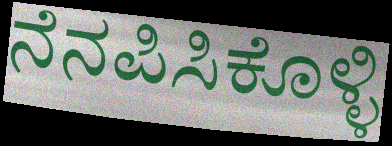
ನೆನಪಿಸಿಕೊಳ್ಳಿ